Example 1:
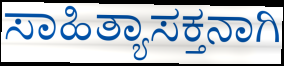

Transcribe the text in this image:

ಸಾಹಿತ್ಯಾಸಕ್ತನಾಗಿ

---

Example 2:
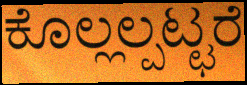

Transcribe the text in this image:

ಕೊಲ್ಲಲ್ಪಟ್ಟರೆ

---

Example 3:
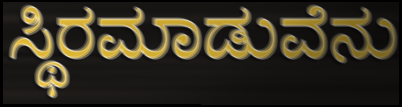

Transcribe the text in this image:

ಸ್ಥಿರಮಾಡುವೆನು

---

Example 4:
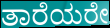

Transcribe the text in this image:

ತಾರೆಯರೇ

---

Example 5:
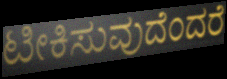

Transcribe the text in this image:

ಟೀಕಿಸುವುದೆಂದರೆ